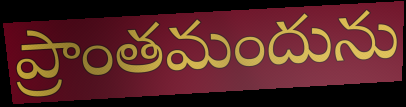
ప్రాంతమందును